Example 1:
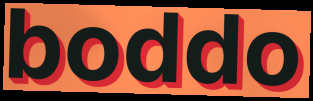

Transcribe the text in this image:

boddo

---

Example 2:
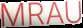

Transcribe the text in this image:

MRAU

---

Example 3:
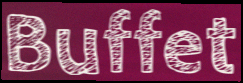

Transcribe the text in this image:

Buffet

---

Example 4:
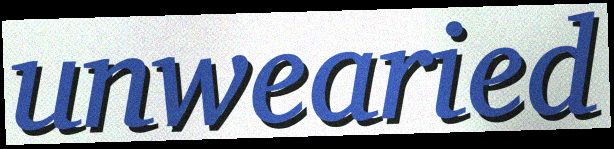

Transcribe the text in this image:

unwearied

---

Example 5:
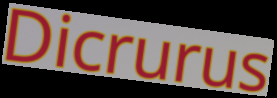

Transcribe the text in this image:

Dicrurus